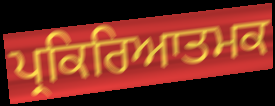
ਪ੍ਰਕਿਰਿਆਤਮਕ